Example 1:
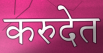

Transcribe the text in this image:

करुदेत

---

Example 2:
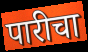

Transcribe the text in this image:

पारीचा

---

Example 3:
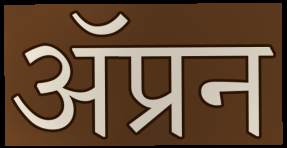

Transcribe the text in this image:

ॲप्रन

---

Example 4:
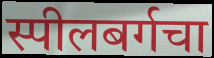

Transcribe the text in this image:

स्पीलबर्गचा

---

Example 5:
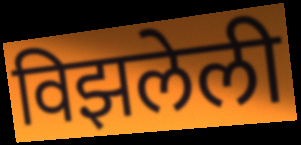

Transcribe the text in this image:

विझलेली